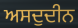
ਅਸਦੁਦੀਨ